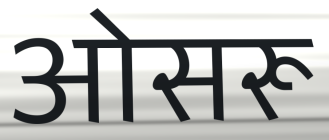
ओसरू